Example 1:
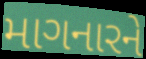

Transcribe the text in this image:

માગનારને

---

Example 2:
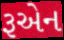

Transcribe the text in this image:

રૂએન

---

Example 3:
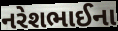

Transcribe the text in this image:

નરેશભાઈના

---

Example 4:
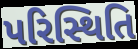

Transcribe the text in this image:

પરિસ્થિતિ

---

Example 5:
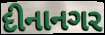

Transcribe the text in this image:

દીનાનગર